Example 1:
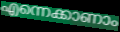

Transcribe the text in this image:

എന്നെക്കാണാം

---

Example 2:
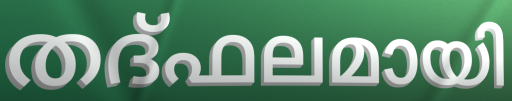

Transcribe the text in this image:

തദ്ഫലമായി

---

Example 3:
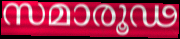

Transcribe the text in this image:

സമാരൂഢ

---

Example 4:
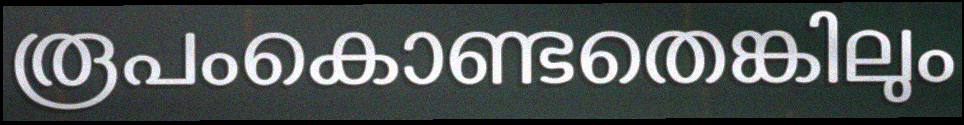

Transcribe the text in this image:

രൂപംകൊണ്ടതെങ്കിലും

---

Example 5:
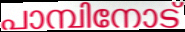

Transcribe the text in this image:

പാമ്പിനോട്